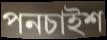
পনচাইশ